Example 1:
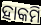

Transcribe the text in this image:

ହାକମି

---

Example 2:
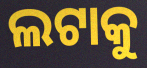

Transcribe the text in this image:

ଲଟାକୁ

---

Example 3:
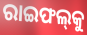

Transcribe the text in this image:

ରାଇଫଲ୍‍କୁ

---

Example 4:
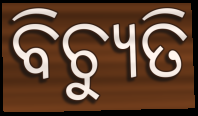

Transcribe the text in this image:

ବିଚ୍ୟୁତି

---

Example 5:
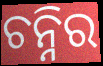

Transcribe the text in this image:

ଚନ୍ନିର